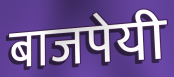
बाजपेयी